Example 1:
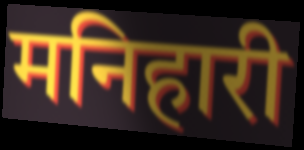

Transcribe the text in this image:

मनिहारी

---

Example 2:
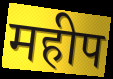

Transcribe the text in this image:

महीप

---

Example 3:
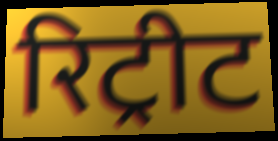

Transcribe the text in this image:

रिट्रीट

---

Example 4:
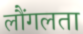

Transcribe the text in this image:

लौंगलता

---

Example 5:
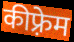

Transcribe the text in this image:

कीफ़्रेम